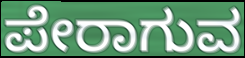
ಪೇರಾಗುವ